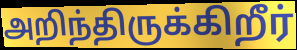
அறிந்திருக்கிறீர்